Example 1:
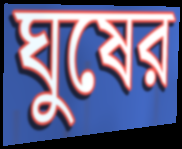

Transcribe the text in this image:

ঘুষের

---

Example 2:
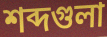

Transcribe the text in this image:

শব্দগুলা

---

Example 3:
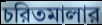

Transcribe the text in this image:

চরিতমালার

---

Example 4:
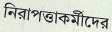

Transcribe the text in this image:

নিরাপত্তাকর্মীদের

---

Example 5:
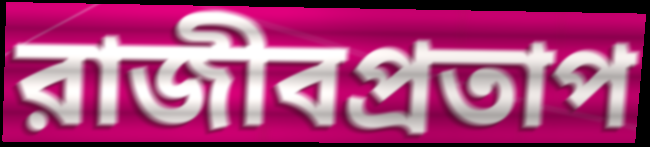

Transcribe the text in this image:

রাজীবপ্রতাপ